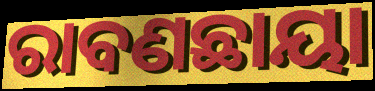
ରାବଣଛାୟା